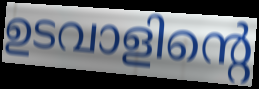
ഉടവാളിന്റെ